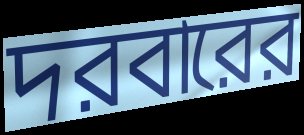
দরবারের